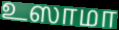
உஸாமா